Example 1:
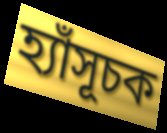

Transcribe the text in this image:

হ্যাঁসূচক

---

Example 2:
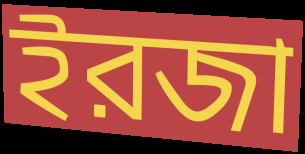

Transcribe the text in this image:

ইরজা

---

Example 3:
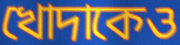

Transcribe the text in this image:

খোদাকেও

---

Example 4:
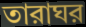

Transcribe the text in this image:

তারাঘর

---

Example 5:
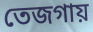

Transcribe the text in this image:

তেজগায়